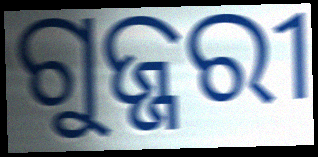
ଗୁଜ୍ଜରୀ